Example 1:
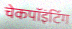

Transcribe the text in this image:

चेकपॉइंटिंग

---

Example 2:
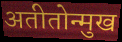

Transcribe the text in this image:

अतीतोन्मुख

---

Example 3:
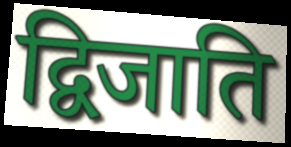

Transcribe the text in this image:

द्विजाति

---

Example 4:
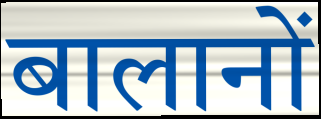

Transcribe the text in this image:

बालानों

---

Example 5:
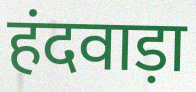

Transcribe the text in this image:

हंदवाड़ा